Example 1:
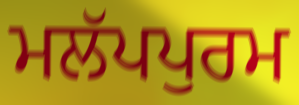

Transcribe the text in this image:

ਮਲੱਪਪੁਰਮ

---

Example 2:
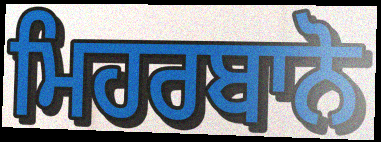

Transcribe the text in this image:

ਮਿਹਰਬਾਨੋ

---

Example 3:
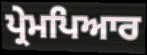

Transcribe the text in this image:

ਪ੍ਰੇਮਪਿਆਰ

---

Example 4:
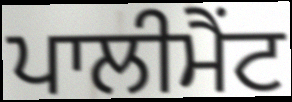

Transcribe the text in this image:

ਪਾਲੀਮੈਂਟ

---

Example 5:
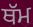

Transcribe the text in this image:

ਥੱਮ